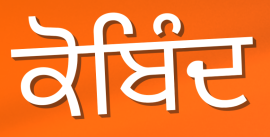
ਕੋਬਿੰਦ